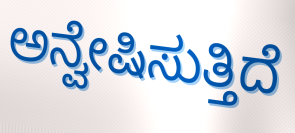
ಅನ್ವೇಷಿಸುತ್ತಿದೆ